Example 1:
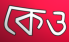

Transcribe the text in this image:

কেও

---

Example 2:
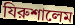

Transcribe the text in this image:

যিরুশালেম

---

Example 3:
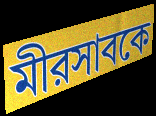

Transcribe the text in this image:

মীরসাবকে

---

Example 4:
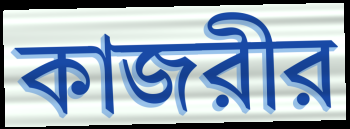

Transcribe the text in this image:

কাজরীর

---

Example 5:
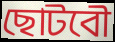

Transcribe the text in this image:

ছোটবৌ